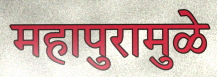
महापुरामुळे